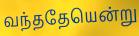
வந்ததேயென்று